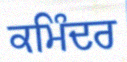
ਕਮਿੰਦਰ